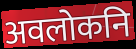
अवलोकनि